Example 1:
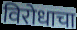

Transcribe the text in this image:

विरोधाचा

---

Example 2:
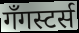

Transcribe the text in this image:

गँगस्टर्स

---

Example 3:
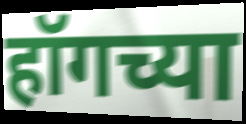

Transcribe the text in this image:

हॉगच्या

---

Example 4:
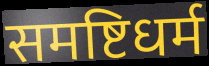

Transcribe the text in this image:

समष्टिधर्म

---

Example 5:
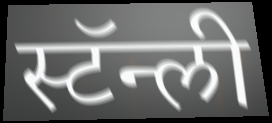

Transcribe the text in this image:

स्टॅन्ली